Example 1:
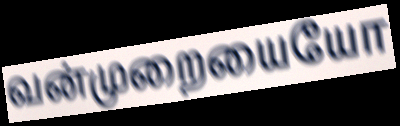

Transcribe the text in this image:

வன்முறையையோ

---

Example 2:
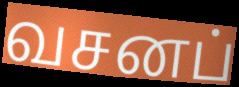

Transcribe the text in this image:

வசனப்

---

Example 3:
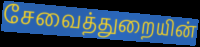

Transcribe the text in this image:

சேவைத்துறையின்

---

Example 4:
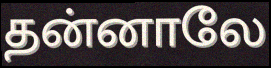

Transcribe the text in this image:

தன்னாலே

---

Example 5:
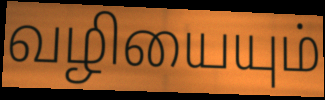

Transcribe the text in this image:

வழியையும்